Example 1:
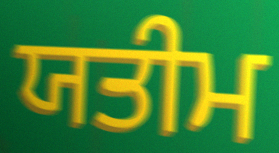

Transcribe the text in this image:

ਯਤੀਮ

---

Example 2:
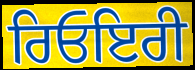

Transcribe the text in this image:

ਰਿਓਇਰੀ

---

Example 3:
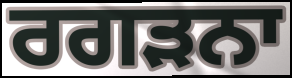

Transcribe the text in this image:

ਰਗੜਨਾ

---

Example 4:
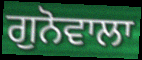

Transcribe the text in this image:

ਗੁਨੋਵਾਲਾ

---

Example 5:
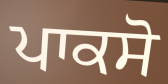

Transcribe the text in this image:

ਪਾਕਸੋ